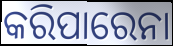
କରିପାରେନା